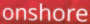
onshore